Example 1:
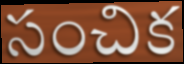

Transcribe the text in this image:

సంచిక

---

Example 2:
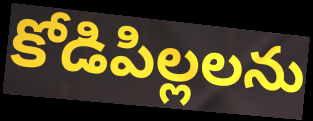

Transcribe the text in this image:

కోడిపిల్లలను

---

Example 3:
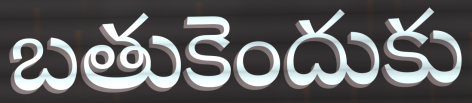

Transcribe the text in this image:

బతుకెందుకు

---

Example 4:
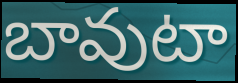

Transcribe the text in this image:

బావుటా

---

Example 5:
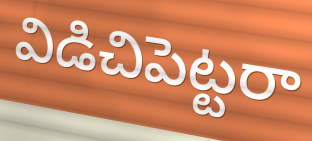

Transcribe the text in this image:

విడిచిపెట్టరా